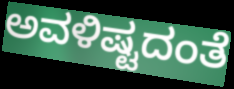
ಅವಳಿಷ್ಟದಂತೆ